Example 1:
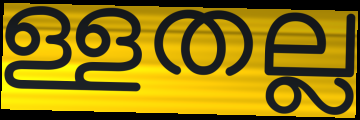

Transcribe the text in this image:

ള്ളതല്ല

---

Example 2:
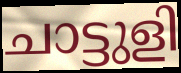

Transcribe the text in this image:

ചാട്ടുളി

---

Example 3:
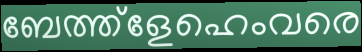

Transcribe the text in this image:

ബേത്ത്ളേഹെംവരെ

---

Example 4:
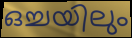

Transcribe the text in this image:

ഒച്ചയിലും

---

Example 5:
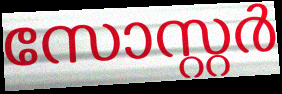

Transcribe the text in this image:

സോസ്റ്റർ